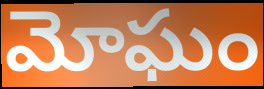
మోఘం